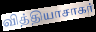
வித்தியாசாகர்